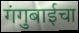
गंगुबाईचा